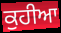
ਕੁਹੀਆ